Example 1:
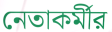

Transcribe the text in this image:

নেতাকর্মীর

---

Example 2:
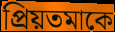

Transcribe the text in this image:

প্রিয়তমাকে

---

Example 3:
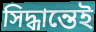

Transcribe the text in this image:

সিদ্ধান্তেই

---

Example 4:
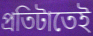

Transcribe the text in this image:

প্রতিটাতেই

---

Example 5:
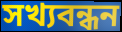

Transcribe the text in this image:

সখ্যবন্ধন